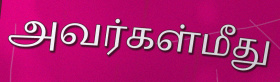
அவர்கள்மீது